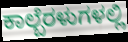
ಕಾಲ್ಬೆರಳುಗಳಲ್ಲಿ